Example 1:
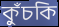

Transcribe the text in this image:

কুঁচকি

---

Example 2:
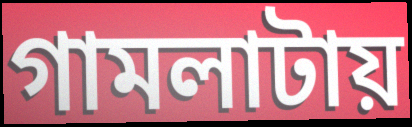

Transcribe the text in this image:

গামলাটায়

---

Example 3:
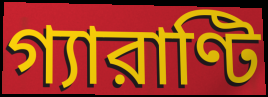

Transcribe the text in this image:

গ্যারাণ্টি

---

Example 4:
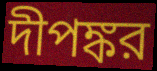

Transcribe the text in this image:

দীপঙ্কর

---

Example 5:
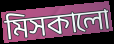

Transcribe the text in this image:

মিসকালো